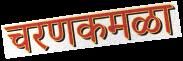
चरणकमळा